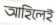
আহিলেই